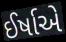
ઈર્ષાએ